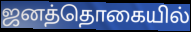
ஜனத்தொகையில்